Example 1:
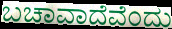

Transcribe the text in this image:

ಬಚಾವಾದೆವೆಂದು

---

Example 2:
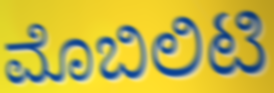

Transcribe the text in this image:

ಮೊಬಿಲಿಟಿ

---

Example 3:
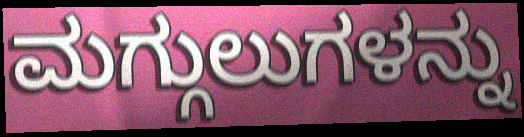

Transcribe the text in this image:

ಮಗ್ಗುಲುಗಳನ್ನು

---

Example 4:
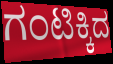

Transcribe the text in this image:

ಗಂಟಿಕ್ಕಿದ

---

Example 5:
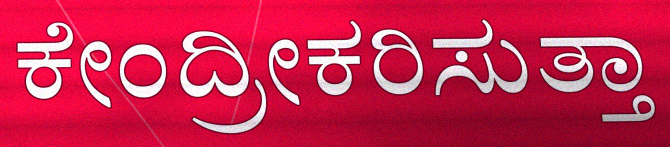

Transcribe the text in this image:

ಕೇಂದ್ರೀಕರಿಸುತ್ತಾ